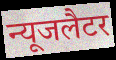
न्यूजलैटर